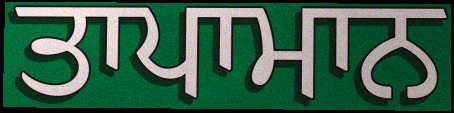
ਤਾਪਾਮਾਨ